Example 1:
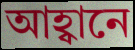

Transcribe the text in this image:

আহ্বানে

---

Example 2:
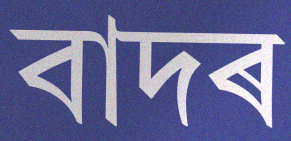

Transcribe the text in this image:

বাদৰ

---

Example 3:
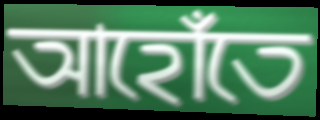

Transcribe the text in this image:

আহোঁতে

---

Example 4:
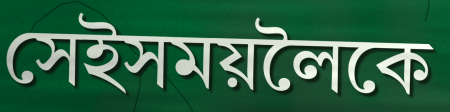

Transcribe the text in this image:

সেইসময়লৈকে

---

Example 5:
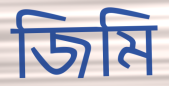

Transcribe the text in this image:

জিমি